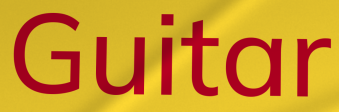
Guitar